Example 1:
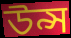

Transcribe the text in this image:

উন্স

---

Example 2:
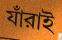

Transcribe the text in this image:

যাঁরাই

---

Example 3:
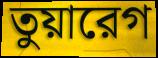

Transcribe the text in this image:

তুয়ারেগ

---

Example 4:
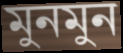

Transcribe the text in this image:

মুনমুন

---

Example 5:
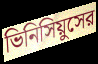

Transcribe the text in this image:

ভিনিসিয়ুসের